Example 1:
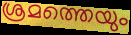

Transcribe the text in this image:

ശ്രമത്തെയും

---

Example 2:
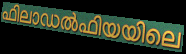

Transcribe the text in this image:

ഫിലാഡൽഫിയയിലെ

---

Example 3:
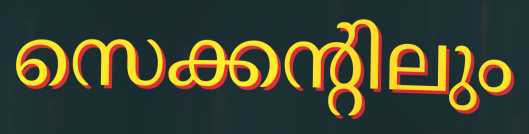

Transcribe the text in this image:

സെക്കന്റിലും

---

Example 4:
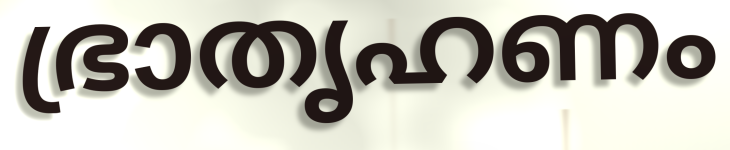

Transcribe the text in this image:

ഭ്രാതൃഹണം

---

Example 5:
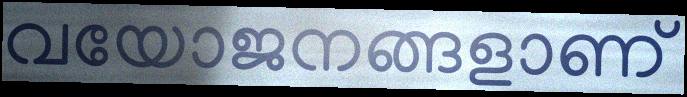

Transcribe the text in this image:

വയോജനങ്ങളാണ്